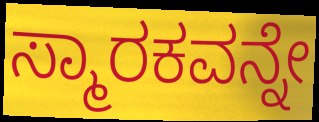
ಸ್ಮಾರಕವನ್ನೇ